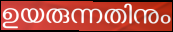
ഉയരുന്നതിനും